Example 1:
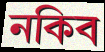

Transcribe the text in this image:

নকিব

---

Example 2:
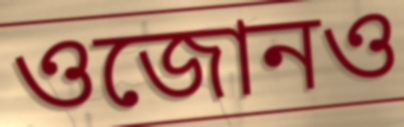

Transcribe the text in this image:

ওজোনও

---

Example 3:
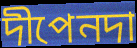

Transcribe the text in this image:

দীপেনদা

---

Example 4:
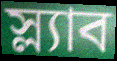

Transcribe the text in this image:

স্ল্যাব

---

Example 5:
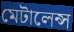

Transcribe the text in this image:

মেটালেন্স